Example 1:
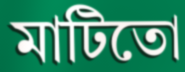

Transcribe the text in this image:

মাটিতো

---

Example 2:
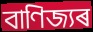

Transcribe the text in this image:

বাণিজ্যৰ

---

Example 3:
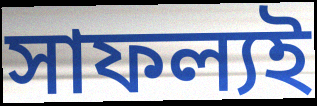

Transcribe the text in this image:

সাফল্যই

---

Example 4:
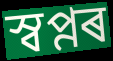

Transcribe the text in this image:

স্বপ্নৰ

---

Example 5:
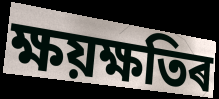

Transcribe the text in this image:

ক্ষয়ক্ষতিৰ